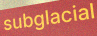
subglacial